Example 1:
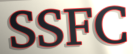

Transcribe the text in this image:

SSFC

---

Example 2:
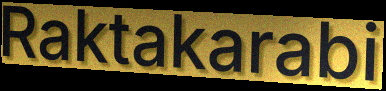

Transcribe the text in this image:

Raktakarabi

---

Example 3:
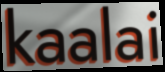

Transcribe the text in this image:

kaalai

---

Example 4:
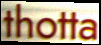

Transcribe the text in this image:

thotta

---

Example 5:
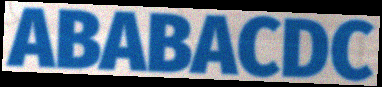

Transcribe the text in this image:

ABABACDC